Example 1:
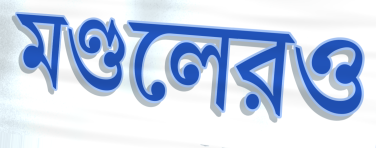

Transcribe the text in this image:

মণ্ডলেরও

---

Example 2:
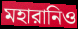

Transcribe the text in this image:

মহারানিও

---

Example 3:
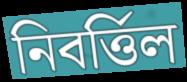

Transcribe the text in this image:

নিবর্ত্তিল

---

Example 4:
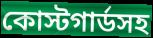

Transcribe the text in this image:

কোস্টগার্ডসহ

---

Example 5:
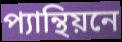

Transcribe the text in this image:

প্যান্থিয়নে